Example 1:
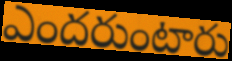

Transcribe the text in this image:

ఎందరుంటారు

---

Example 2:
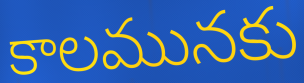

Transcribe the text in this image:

కాలమునకు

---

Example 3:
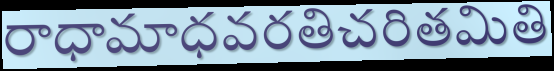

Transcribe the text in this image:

రాధామాధవరతిచరితమితి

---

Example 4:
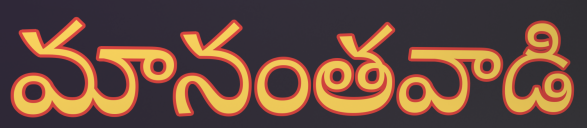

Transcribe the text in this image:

మానంతవాడి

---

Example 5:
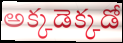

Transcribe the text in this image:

అక్కడెక్కడో